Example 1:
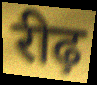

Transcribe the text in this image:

रीढ़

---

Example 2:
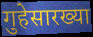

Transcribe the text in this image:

गुहेसारख्या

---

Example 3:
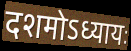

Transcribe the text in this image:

दशमोऽध्यायः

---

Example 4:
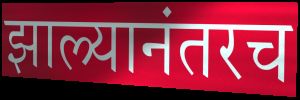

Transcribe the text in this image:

झाल्यानंतरच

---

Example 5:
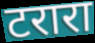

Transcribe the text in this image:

टरारा